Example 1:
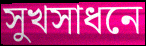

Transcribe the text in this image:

সুখসাধনে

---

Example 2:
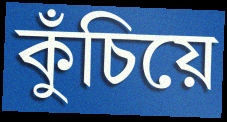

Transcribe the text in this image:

কুঁচিয়ে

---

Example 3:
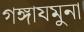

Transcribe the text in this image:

গঙ্গাযমুনা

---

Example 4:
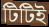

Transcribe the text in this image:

টিটিই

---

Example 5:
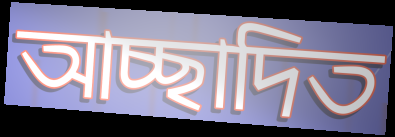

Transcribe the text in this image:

আচ্ছাদিত